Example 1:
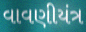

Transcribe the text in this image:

વાવણીયંત્ર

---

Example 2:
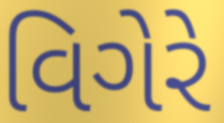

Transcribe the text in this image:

વિગેરે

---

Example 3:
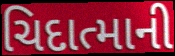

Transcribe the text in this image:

ચિદાત્માની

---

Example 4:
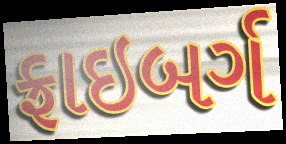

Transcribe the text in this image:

ફ્રાઇબર્ગ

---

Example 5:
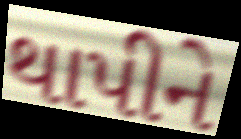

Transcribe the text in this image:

થાપીને